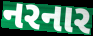
નરનાર